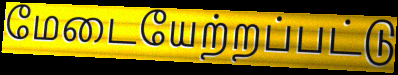
மேடையேற்றப்பட்டு